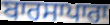
ਬਾਰਸਾਪਾਰਾ